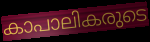
കാപാലികരുടെ